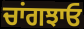
ਚਾਂਗਝਾਓ